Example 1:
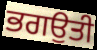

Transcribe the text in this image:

ਭਗਉਤੀ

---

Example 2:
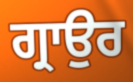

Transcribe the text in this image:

ਗ੍ਰਾਉਰ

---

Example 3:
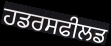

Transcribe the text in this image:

ਹਡਰਸਫੀਲਡ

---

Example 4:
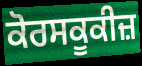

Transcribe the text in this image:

ਕੋਰਸਕੂਕੀਜ਼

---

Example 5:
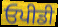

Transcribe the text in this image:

ਓਪੀਡੀ